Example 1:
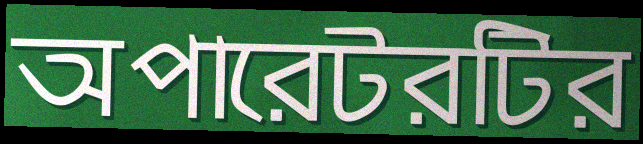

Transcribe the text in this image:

অপারেটরটির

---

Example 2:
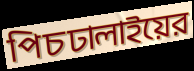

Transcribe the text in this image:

পিচঢালাইয়ের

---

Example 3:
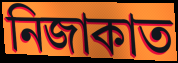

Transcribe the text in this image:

নিজাকাত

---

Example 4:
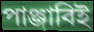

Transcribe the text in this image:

পাঞ্জাবিই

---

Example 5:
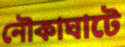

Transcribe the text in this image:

নৌকাঘাটে